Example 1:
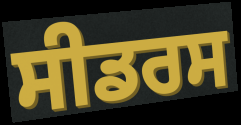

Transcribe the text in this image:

ਸੀਡਰਸ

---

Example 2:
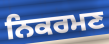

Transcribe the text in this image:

ਨਿਕਰਮਣ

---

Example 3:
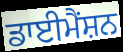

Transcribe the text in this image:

ਡਾਈਮੈਂਸ਼ਨ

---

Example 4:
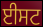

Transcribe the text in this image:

ਈਸਟ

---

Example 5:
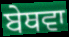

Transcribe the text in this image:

ਬੇਥਵਾ